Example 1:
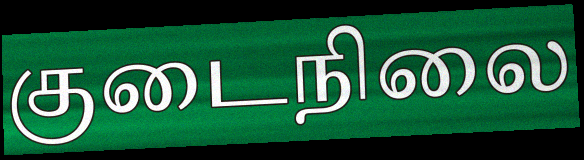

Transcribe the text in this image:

குடைநிலை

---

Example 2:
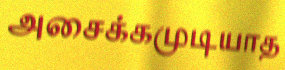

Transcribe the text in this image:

அசைக்கமுடியாத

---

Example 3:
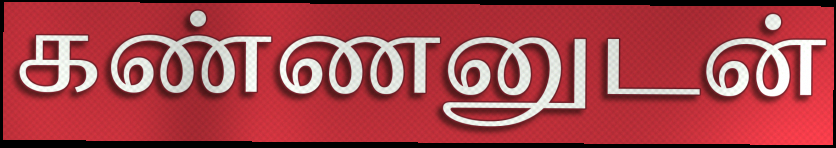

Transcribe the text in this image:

கண்ணனுடன்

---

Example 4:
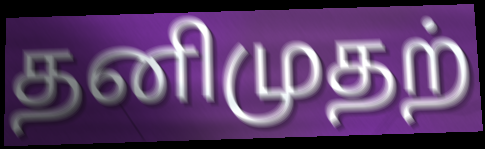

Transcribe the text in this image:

தனிமுதற்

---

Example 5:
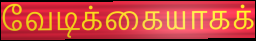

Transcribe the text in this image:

வேடிக்கையாகக்